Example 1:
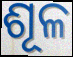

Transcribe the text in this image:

ଶୂଳ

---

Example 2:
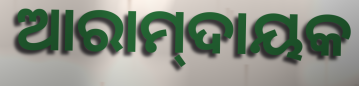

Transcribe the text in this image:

ଆରାମ୍‌ଦାୟକ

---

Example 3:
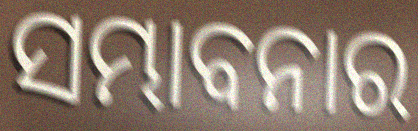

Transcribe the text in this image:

ସମ୍ଭାବନାର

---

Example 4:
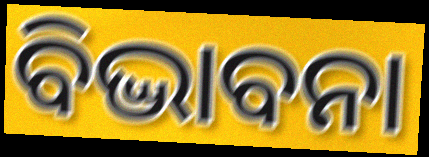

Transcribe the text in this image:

ବିଦ୍ଭାବନା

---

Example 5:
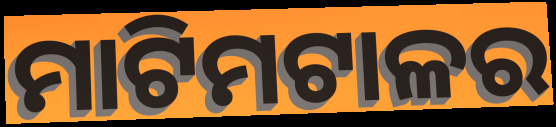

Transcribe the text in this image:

ମାଟିମଟାଳର